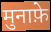
मुनाफ़े